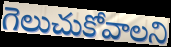
గెలుచుకోవాలని